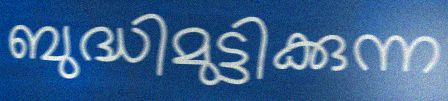
ബുദ്ധിമുട്ടിക്കുന്ന